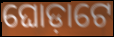
ଘୋଡ଼ାଟେ